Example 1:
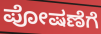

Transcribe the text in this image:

ಪೋಷಣೆಗೆ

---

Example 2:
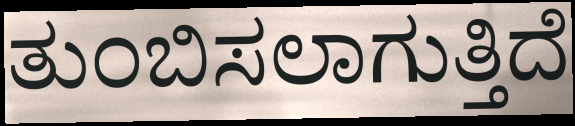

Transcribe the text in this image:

ತುಂಬಿಸಲಾಗುತ್ತಿದೆ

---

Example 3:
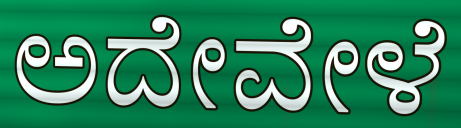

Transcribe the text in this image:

ಅದೇವೇಳೆ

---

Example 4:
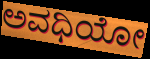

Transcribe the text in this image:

ಅವಧಿಯೋ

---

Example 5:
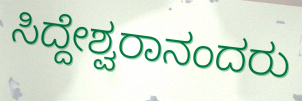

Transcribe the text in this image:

ಸಿದ್ದೇಶ್ವರಾನಂದರು